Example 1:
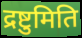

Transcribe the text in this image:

द्रष्टुमिति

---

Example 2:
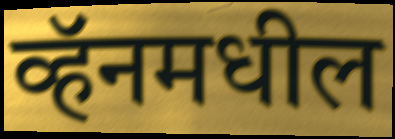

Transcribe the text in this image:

व्हॅनमधील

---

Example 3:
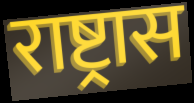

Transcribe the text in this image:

राष्ट्रास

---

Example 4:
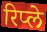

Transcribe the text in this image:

रिप्ले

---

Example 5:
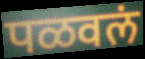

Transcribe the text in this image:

पळवलं